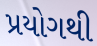
પ્રયોગથી